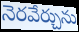
నెరవేర్చును